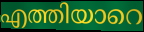
എത്തിയാറെ